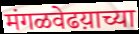
मंगळवेढय़ाच्या